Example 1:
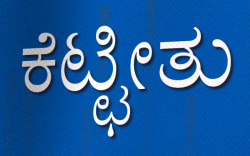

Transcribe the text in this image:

ಕೆಟ್ಟೀತು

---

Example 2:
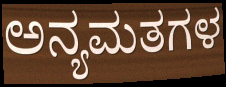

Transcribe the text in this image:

ಅನ್ಯಮತಗಳ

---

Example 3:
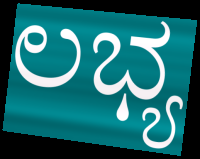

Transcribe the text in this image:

ಲಭ್ಯ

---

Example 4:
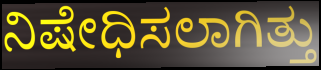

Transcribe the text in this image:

ನಿಷೇಧಿಸಲಾಗಿತ್ತು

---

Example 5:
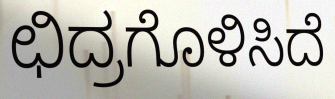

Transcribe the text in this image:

ಛಿದ್ರಗೊಳಿಸಿದೆ